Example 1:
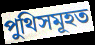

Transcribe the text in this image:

পুথিসমূহত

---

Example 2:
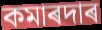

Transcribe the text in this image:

কমাৰদাৰ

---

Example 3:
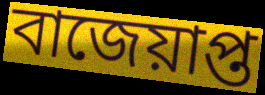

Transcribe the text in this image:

বাজেয়াপ্ত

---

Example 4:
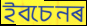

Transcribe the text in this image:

ইবচেনৰ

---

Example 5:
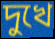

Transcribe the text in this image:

দুখে